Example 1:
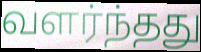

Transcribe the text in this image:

வளர்ந்தது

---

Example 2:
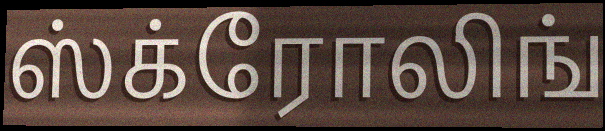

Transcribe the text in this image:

ஸ்க்ரோலிங்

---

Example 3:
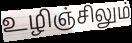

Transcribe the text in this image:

உழிஞ்சிலும்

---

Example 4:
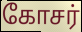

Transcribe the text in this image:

கோசர்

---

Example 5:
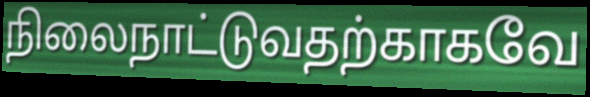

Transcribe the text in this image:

நிலைநாட்டுவதற்காகவே